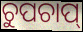
ଚୁପଚାପ୍